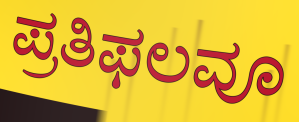
ಪ್ರತಿಫಲವೂ